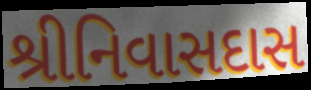
શ્રીનિવાસદાસ